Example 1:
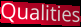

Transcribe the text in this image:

Qualities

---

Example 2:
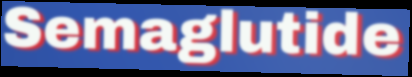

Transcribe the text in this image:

Semaglutide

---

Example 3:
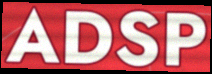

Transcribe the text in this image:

ADSP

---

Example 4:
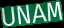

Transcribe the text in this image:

UNAM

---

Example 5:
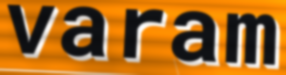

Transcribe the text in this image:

varam